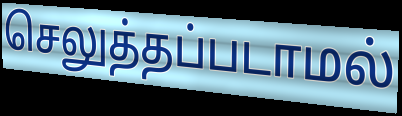
செலுத்தப்படாமல்